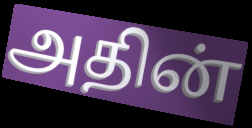
அதின்